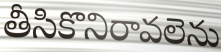
తీసికొనిరావలెను